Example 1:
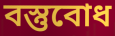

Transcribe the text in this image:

বস্তুবোধ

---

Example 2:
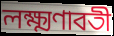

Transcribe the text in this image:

লক্ষ্মণাবতী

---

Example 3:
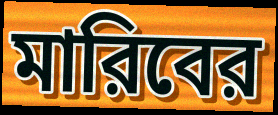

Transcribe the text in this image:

মারিবের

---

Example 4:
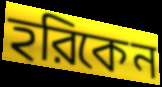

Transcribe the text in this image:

হরিকেন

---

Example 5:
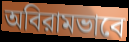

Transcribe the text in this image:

অবিরামভাবে